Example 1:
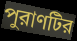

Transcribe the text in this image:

পুরাণটির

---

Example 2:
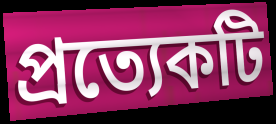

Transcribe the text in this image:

প্রত্যেকটি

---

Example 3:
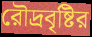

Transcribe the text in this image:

রৌদ্রবৃষ্টির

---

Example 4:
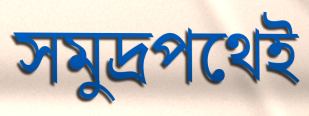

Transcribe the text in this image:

সমুদ্রপথেই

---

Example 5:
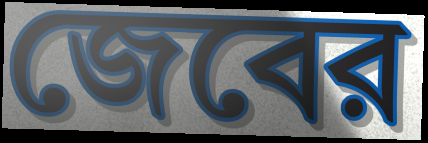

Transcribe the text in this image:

জেবের